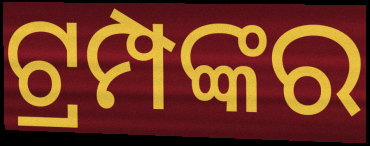
ଟ୍ରମ୍ପଙ୍କର